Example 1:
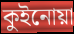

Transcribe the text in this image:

কুইনোয়া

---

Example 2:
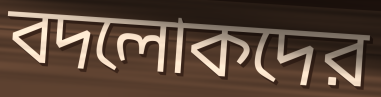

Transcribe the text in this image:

বদলোকদের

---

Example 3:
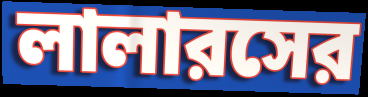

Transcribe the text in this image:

লালারসের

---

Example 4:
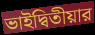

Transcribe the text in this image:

ভাইদ্বিতীয়ার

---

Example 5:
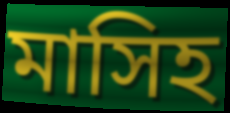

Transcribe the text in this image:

মাসিহ